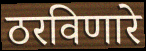
ठरविणारे